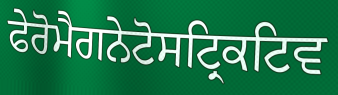
ਫੇਰੋਮੈਗਨੇਟੋਸਟ੍ਰਿਕਟਿਵ